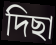
দিছা